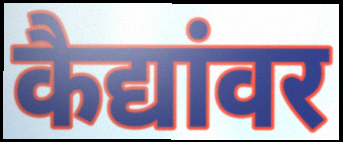
कैद्यांवर